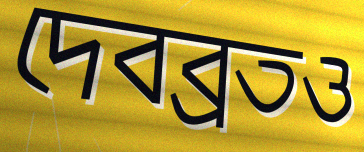
দেবব্রতও